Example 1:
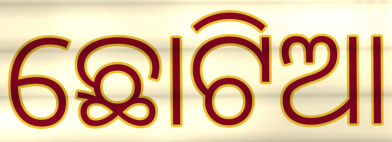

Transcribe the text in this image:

ଛୋଟିଆ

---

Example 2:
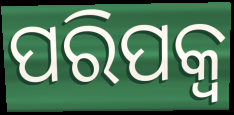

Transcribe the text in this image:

ପରିପକ୍ବ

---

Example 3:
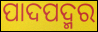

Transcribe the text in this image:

ପାଦପଦ୍ମର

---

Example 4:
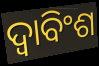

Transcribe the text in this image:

ଦ୍ୱାବିଂଶ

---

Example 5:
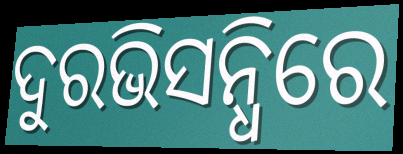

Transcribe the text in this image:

ଦୁରଭିସନ୍ଧିରେ